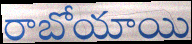
రాబోయాయి